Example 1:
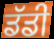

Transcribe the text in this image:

ਡੱਡੀ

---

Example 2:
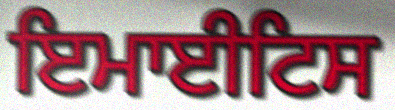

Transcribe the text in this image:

ਇਮਾਈਟਿਸ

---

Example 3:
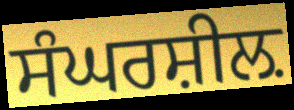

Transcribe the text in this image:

ਸੰਘਰਸ਼ੀਲ਼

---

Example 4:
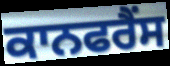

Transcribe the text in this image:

ਕਾਨਫਰੈਂਸ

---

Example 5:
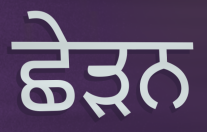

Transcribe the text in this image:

ਛੇੜਨ